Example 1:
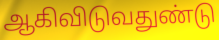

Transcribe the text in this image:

ஆகிவிடுவதுண்டு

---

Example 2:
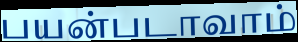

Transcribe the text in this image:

பயன்படாவாம்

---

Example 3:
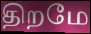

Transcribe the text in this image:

திறமே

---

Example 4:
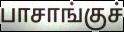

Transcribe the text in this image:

பாசாங்குச்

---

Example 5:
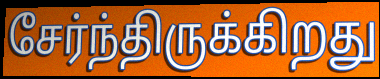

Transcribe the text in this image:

சேர்ந்திருக்கிறது